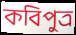
কবিপুত্র